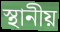
স্থানীয়